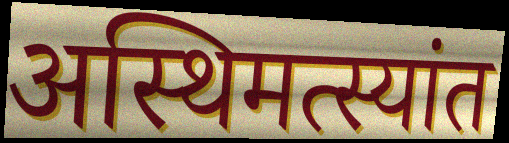
अस्थिमत्स्यांत